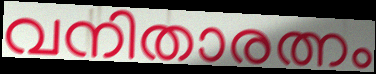
വനിതാരത്നം